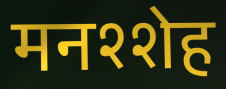
मनश्शेह